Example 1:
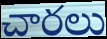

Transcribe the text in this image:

చారలు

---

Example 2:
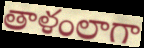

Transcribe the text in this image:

తాళంలాగా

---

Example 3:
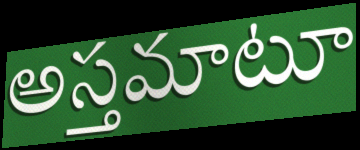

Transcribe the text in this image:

అస్తమాటూ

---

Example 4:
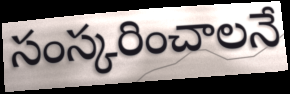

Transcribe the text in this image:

సంస్కరించాలనే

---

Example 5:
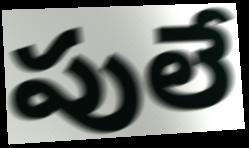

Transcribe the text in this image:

పులే